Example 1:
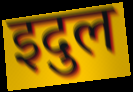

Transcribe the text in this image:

इदुल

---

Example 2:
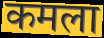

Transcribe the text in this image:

कमला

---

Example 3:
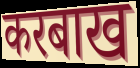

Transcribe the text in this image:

करबाख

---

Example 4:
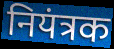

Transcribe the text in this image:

नियंत्रक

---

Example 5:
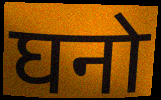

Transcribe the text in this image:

घनो